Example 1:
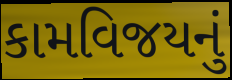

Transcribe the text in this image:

કામવિજયનું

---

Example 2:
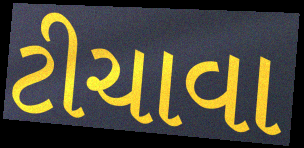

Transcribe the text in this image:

ટીચાવા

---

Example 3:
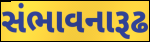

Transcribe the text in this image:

સંભાવનારૂઢ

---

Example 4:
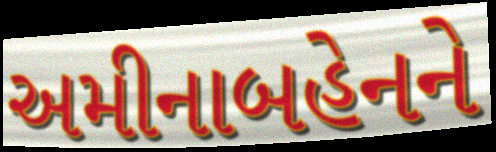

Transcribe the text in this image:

અમીનાબહેનને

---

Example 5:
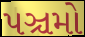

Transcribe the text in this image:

પઞ્ચમો